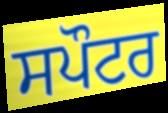
ਸਪੌਟਰ